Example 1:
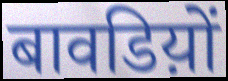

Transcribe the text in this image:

बावडिय़ों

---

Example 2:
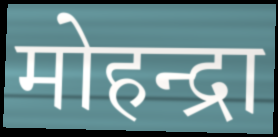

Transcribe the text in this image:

मोहन्द्रा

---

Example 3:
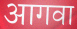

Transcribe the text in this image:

आगवा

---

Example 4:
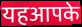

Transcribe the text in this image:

यहआपके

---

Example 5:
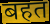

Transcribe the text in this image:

बहत